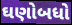
ઘણોબધો